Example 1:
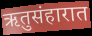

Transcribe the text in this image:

ऋतुसंहारात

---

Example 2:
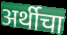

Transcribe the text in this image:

अर्थीचा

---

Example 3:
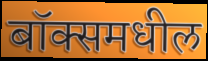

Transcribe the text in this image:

बॉक्समधील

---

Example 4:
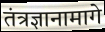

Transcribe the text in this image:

तंत्रज्ञानामागे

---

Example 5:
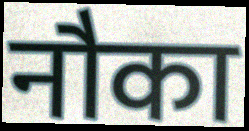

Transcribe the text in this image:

नौका